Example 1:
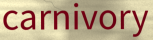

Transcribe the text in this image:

carnivory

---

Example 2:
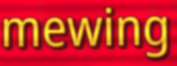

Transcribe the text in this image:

mewing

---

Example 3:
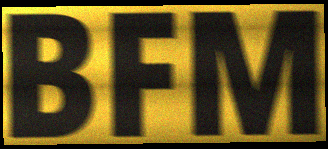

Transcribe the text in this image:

BFM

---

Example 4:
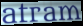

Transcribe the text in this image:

atram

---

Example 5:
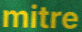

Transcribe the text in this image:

mitre